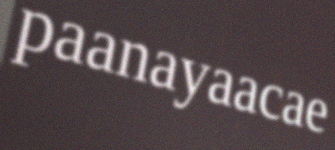
paanayaacae